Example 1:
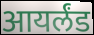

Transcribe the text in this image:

आयर्लंड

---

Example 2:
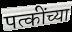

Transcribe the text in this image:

पत्कींच्या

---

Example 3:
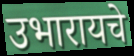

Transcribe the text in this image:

उभारायचे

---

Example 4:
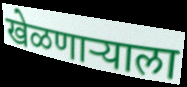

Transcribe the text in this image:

खेळणाऱ्याला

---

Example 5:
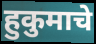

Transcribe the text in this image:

हुकुमाचे